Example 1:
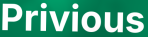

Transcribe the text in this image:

Privious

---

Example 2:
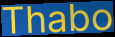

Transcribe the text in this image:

Thabo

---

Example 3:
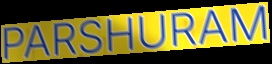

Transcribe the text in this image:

PARSHURAM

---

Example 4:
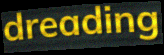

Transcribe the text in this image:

dreading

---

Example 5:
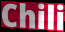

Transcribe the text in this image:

Chili